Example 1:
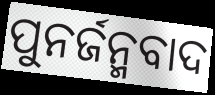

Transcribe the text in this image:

ପୁନର୍ଜନ୍ମବାଦ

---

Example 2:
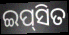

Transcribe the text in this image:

ଇପ୍‍ସିତ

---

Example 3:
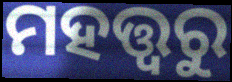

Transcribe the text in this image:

ମହତ୍ତ୍ୱରୁ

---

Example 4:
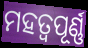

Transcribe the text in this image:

ମହତ୍ଵପୂର୍ଣ୍ଣ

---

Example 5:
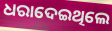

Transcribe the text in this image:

ଧରାଦେଇଥିଲେ